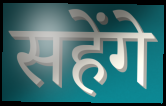
सहेंगे